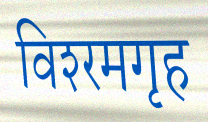
विश्रमगृह